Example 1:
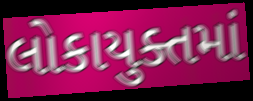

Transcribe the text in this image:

લોકાયુક્તમાં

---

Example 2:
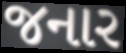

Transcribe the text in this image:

જનાર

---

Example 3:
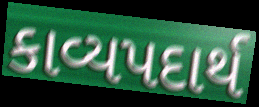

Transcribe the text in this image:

કાવ્યપદાર્થ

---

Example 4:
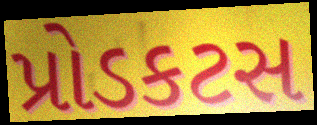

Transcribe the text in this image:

પ્રોડકટસ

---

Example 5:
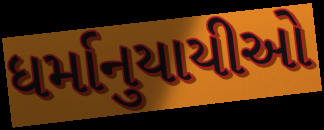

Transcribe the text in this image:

ધર્માનુયાયીઓ